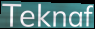
Teknaf